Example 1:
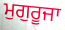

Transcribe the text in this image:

ਮੁਗੁਰੂਜਾ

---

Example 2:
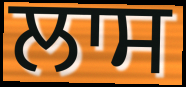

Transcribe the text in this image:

ਲਾਸ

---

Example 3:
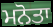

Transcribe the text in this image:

ਮਨੋਤਾ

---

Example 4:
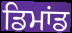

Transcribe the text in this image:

ਡਿਮਾਂਡ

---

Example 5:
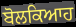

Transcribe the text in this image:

ਬੋਲਕਿਆਹ